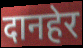
दानहेर